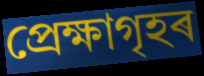
প্ৰেক্ষাগৃহৰ